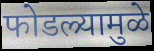
फोडल्यामुळे